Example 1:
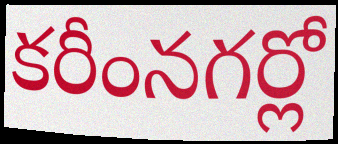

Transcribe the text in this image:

కరీంనగర్లో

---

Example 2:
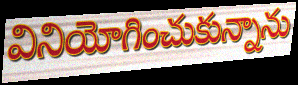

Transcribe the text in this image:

వినియోగించుకున్నాను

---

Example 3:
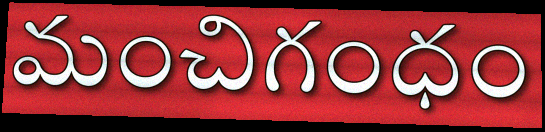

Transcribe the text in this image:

మంచిగంధం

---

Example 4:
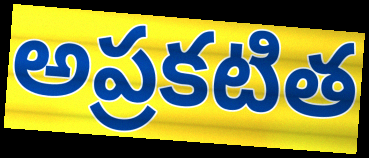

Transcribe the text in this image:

అప్రకటిత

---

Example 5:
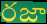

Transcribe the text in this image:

రజా